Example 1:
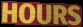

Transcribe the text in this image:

HOURS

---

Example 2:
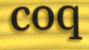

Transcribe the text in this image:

coq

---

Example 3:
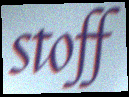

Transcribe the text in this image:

stoff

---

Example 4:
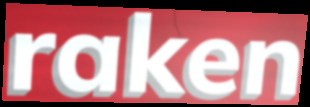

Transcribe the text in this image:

raken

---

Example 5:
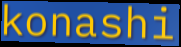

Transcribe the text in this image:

konashi